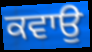
ਕਵਾਉ